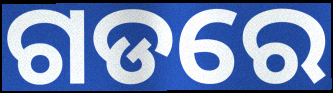
ଗଡରେ